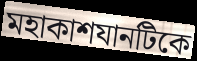
মহাকাশযানটিকে